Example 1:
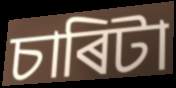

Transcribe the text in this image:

চাৰিটা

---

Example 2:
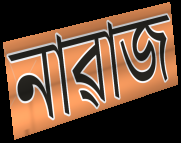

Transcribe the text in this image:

নাৱাজ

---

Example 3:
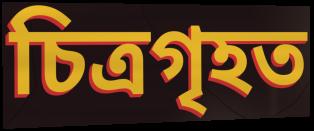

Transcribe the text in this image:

চিত্ৰগৃহত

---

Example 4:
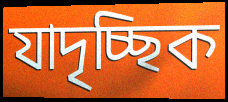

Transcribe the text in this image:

যাদৃচ্ছিক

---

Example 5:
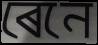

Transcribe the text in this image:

ৰেনে